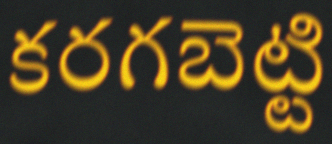
కరగబెట్టి